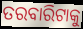
ତରବାରିଟାକୁ